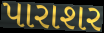
પારાશર